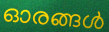
ഓരങ്ങൾ